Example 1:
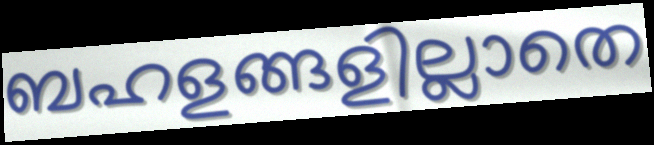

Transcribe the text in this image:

ബഹളങ്ങളില്ലാതെ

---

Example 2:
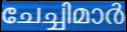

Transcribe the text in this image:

ചേച്ചിമാർ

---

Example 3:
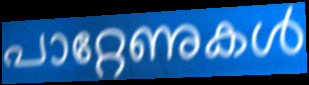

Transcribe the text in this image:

പാറ്റേണുകൾ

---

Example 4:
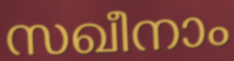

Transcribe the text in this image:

സഖീനാം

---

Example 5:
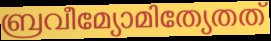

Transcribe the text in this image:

ബ്രവീമ്യോമിത്യേതത്